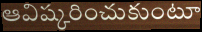
ఆవిష్కరించుకుంటూ